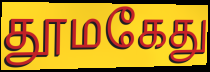
தூமகேது